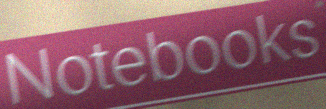
Notebooks